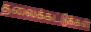
தலைக்கட்டுக்கள்